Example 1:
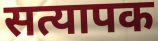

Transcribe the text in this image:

सत्यापक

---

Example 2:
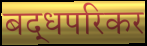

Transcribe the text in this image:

बद्धपरिकर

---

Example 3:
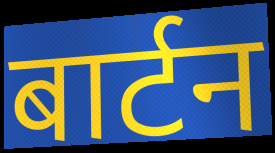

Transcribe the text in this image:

बार्टन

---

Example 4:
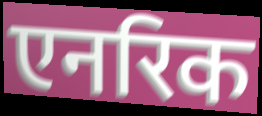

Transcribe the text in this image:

एनरिक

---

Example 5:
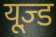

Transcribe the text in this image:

यूज़्ड